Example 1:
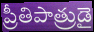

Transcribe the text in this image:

ప్రీతిపాత్రుడై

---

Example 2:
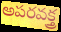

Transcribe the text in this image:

అపరవక్త్ర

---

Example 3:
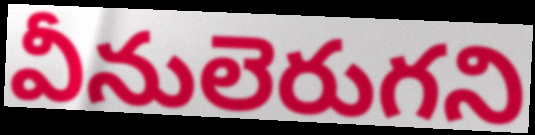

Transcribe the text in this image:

వీనులెరుగని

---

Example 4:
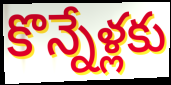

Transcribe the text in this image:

కొన్నేళ్లకు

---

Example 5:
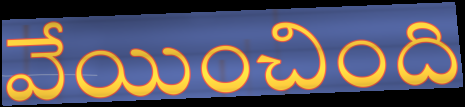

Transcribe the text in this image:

వేయించింది